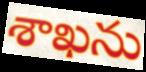
శాఖను